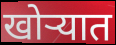
खोर्‍यात